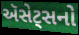
ઍસેટ્સનો